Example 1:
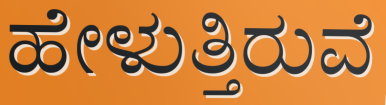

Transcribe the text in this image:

ಹೇಳುತ್ತಿರುವೆ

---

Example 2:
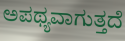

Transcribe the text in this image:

ಅಪಥ್ಯವಾಗುತ್ತದೆ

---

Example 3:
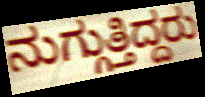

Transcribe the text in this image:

ನುಗ್ಗುತ್ತಿದ್ದರು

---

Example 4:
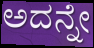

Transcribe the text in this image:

ಅದನ್ನೇ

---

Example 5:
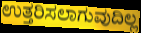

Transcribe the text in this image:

ಉತ್ತರಿಸಲಾಗುವುದಿಲ್ಲ